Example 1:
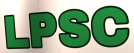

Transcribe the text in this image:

LPSC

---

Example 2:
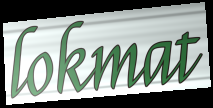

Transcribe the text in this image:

lokmat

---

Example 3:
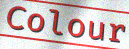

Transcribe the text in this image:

Colour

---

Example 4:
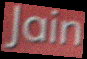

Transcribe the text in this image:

Jain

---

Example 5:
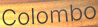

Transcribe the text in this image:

Colombo